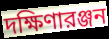
দক্ষিণারঞ্জন